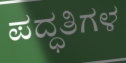
ಪದ್ಧತಿಗಳ